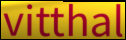
vitthal